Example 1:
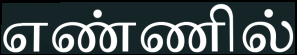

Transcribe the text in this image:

எண்ணில்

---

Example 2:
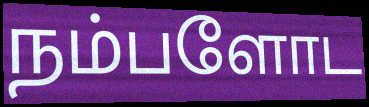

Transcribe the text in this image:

நம்பளோட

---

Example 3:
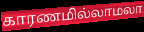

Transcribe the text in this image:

காரணமில்லாமலா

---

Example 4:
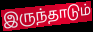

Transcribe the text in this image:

இருந்தாடும்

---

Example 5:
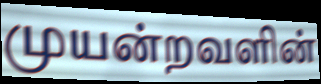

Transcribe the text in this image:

முயன்றவளின்